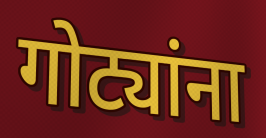
गोट्यांना